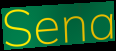
Sena